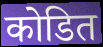
कोडित